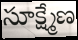
సూక్ష్మేణ